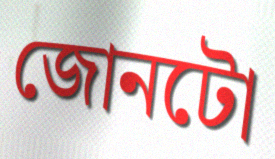
জোনটো